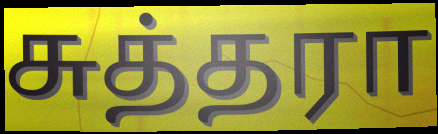
சுத்தரா